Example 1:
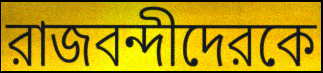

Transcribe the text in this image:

রাজবন্দীদেরকে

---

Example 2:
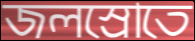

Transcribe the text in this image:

জলস্রোতে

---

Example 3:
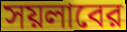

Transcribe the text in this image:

সয়লাবের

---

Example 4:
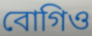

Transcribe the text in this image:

বোগিও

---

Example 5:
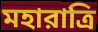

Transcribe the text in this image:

মহারাত্রি